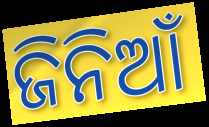
ଜିନିଆଁ